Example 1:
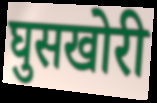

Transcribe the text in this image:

घुसखोरी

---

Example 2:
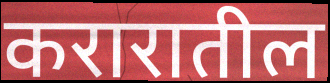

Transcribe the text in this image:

करारातील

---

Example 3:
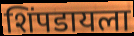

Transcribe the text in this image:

शिंपडायला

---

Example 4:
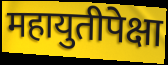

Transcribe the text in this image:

महायुतीपेक्षा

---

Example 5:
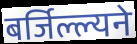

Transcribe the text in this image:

बर्जिल्ल्यने